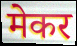
मेकर